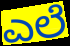
ಎಲೆ